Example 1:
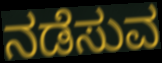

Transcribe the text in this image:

ನಡೆಸುವ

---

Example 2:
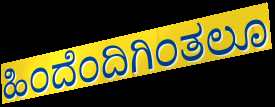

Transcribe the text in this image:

ಹಿಂದೆಂದಿಗಿಂತಲೂ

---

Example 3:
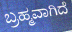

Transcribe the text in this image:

ಬ್ರಹ್ಮವಾಗಿದೆ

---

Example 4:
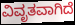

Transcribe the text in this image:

ವಿವೃತವಾಗಿದೆ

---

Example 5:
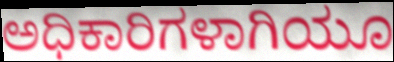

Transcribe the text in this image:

ಅಧಿಕಾರಿಗಳಾಗಿಯೂ